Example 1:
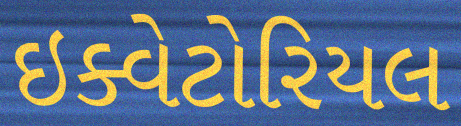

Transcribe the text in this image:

ઇક્વેટોરિયલ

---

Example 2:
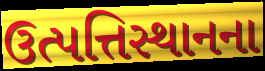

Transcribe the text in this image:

ઉત્પત્તિસ્થાનના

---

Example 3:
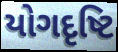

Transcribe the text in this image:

યોગદૃષ્ટિ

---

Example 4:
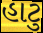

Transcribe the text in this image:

હાટુ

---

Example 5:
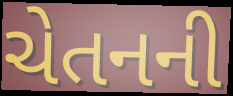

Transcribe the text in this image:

ચેતનની